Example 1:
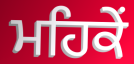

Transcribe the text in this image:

ਮਹਿਕੇਂ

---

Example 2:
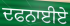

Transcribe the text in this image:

ਦਫਨਾਈਏ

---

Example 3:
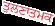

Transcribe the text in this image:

ਤੁਲਣਾਤਮਕ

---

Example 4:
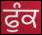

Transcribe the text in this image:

ਫੁੰਕ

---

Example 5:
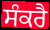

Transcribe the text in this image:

ਸੰਕਰੈ